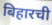
बिहारची